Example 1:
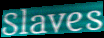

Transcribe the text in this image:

Slaves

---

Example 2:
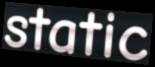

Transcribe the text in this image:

static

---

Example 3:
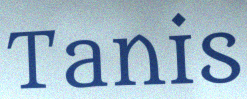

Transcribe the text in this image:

Tanis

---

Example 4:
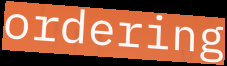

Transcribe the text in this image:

ordering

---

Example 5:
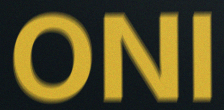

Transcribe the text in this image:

ONI